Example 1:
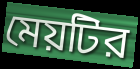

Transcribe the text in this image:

মেয়টির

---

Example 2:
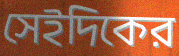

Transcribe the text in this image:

সেইদিকের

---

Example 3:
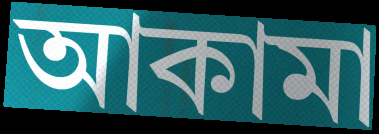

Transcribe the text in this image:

আকামা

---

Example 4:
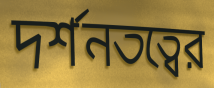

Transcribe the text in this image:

দর্শনতত্বের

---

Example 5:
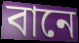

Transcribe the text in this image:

বানে